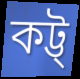
কট্ট্